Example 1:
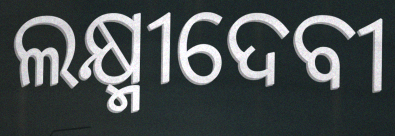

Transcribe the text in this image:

ଲକ୍ଷ୍ମୀଦେବୀ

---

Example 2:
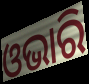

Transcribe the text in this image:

ଓଭାରି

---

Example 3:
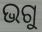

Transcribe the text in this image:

ଭଗୁ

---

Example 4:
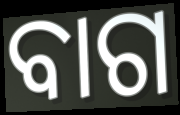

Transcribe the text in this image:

ବାଗ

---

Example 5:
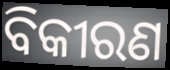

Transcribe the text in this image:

ବିକୀରଣ